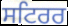
ਸਟਿਰਰ